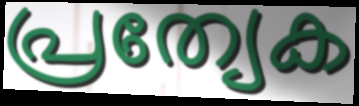
പ്രത്യേക